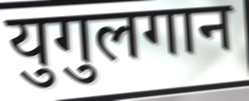
युगुलगान